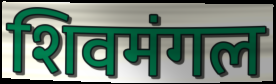
शिवमंगल